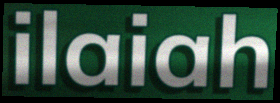
ilaiah